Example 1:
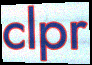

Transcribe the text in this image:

clpr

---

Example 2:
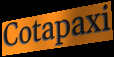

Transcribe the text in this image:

Cotapaxi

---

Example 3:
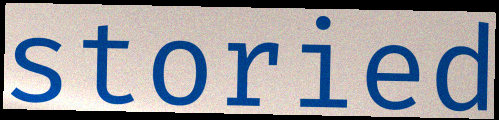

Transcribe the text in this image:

storied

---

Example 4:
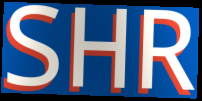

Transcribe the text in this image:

SHR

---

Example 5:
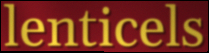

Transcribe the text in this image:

lenticels